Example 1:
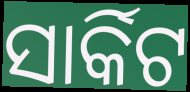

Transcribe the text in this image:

ସାର୍କିଟ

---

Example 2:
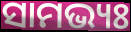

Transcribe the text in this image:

ସାମଭ୍ୟଃ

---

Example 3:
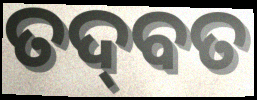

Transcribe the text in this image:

ତଦ୍‍ବତ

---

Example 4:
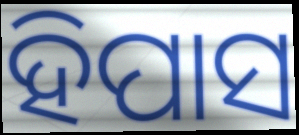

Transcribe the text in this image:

ହିପାସ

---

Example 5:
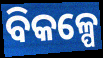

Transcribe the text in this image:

ବିକଳ୍ପେ